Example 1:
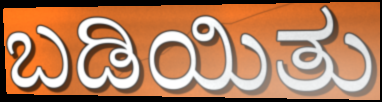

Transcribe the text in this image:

ಬಡಿಯಿತು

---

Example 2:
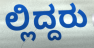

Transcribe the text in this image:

ಲ್ಲಿದ್ದರು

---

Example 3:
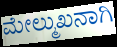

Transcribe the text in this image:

ಮೇಲ್ಮುಖನಾಗಿ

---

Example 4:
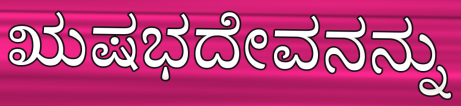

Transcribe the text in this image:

ಋಷಭದೇವನನ್ನು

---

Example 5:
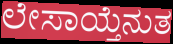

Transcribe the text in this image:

ಲೇಸಾಯ್ತೆನುತ